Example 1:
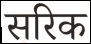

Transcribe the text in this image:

सरिक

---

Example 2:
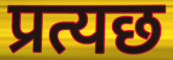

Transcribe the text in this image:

प्रत्यछ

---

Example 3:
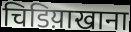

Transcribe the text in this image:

चिडिय़ाखाना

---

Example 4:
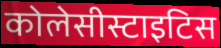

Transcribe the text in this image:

कोलेसीस्टाइटिस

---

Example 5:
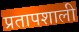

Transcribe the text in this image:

प्रतापशाली